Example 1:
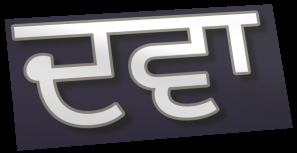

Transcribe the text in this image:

ਦਵਾ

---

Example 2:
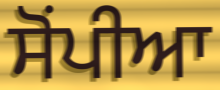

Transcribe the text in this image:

ਸੋਂਪੀਆ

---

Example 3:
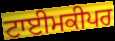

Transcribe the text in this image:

ਟਾਈਮਕੀਪਰ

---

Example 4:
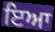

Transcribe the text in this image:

ਇਆ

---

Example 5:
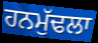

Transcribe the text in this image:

ਹਨਮੁੱਢਲਾ